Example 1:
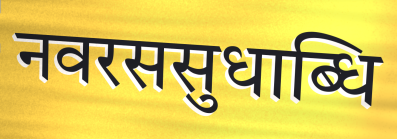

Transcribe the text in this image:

नवरससुधाब्धि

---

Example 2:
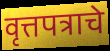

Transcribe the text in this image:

वृत्तपत्राचे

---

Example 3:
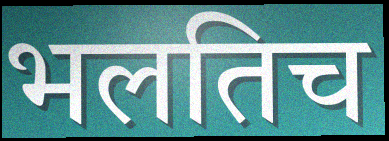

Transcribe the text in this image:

भलतिच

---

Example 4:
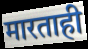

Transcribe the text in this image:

मारताही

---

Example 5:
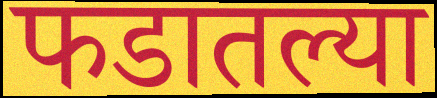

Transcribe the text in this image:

फडातल्या